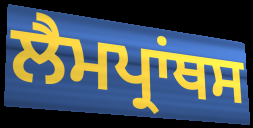
ਲੈਮਪ੍ਰਾਂਥਸ